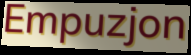
Empuzjon